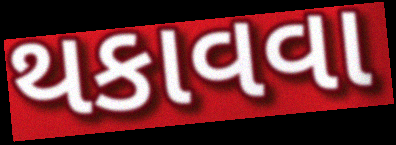
થકાવવા